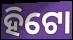
ହିଟୋ